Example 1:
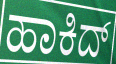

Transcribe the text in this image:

ಹಾಕಿದ್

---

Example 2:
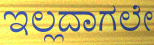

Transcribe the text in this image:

ಇಲ್ಲದಾಗಲೇ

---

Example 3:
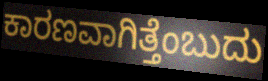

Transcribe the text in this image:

ಕಾರಣವಾಗಿತ್ತೆಂಬುದು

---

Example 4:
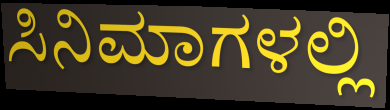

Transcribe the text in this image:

ಸಿನಿಮಾಗಳಲ್ಲಿ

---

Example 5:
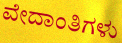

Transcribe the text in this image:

ವೇದಾಂತಿಗಳು